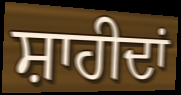
ਸ਼ਾਹੀਦਾਂ